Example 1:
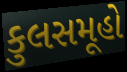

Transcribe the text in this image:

કુલસમૂહો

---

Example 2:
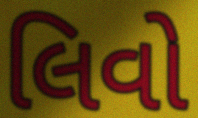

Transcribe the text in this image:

લિવો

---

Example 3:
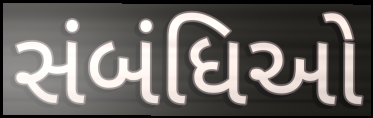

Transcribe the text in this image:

સંબંધિઓ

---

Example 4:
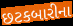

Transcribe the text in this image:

છટકબારીના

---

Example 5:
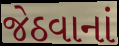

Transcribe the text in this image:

જેઠવાનાં